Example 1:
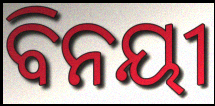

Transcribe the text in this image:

ବିନୟୀ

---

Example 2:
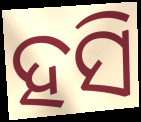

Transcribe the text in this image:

ହସି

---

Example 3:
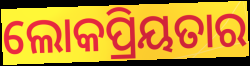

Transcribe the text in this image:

ଲୋକପ୍ରିୟତାର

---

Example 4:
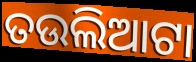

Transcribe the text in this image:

ତଉଲିଆଟା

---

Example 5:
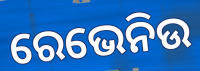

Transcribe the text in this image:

ରେଭେନିଉ